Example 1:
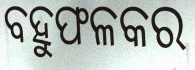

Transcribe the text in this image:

ବହୁଫଳକର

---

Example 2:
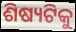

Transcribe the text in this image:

ଶିଷ୍ୟଟିକୁ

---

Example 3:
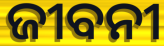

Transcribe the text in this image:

ଜୀବନୀ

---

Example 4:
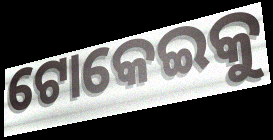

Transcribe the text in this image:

ଟୋକେଇକୁ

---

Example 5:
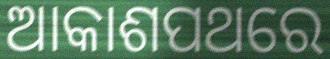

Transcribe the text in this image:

ଆକାଶପଥରେ